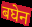
बघेन